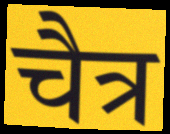
चैत्र